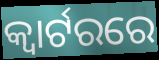
କ୍ଵାର୍ଟରରେ